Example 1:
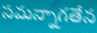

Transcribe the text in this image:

సమన్నాగతేన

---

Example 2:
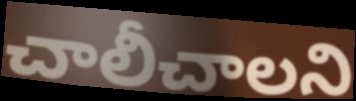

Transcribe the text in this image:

చాలీచాలని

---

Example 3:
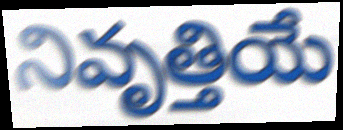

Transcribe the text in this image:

నివృత్తియే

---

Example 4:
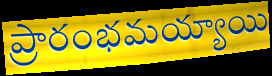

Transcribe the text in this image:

ప్రారంభమయ్యాయి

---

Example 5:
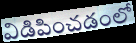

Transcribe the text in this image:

విడిపించడంలో